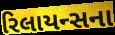
રિલાયન્સના